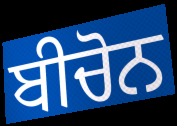
ਬੀਚੋਨ